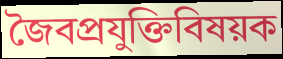
জৈবপ্রযুক্তিবিষয়ক